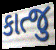
કાત્જુ